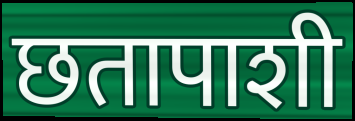
छतापाशी